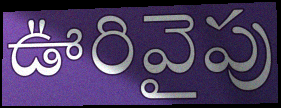
ఊరివైపు